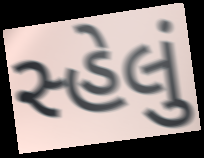
સ્હેલું